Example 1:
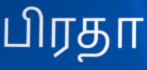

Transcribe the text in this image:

பிரதா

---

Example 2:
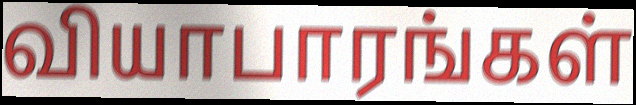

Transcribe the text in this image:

வியாபாரங்கள்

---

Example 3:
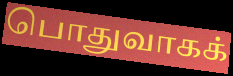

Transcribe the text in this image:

பொதுவாகக்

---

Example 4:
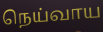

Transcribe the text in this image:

நெய்வாய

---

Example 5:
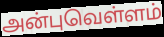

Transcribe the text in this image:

அன்புவெள்ளம்